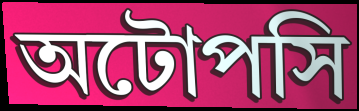
অটোপসি